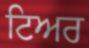
ਟਿਅਰ